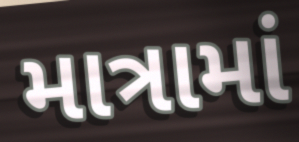
માત્રામાં